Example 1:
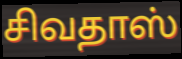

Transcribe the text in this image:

சிவதாஸ்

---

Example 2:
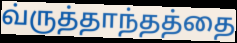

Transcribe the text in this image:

வ்ருத்தாந்தத்தை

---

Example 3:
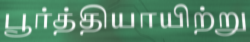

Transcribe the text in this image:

பூர்த்தியாயிற்று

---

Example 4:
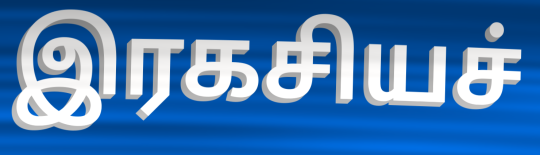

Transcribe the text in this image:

இரகசியச்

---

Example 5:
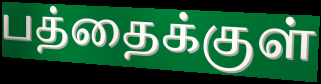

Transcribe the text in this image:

பத்தைக்குள்